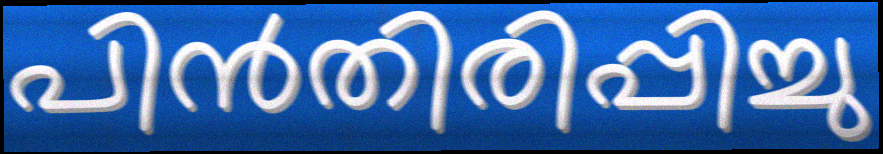
പിൻതിരിപ്പിച്ചു